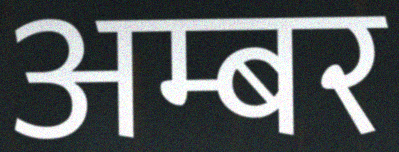
अम्‍बर